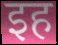
इह